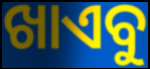
ଖାଏବୁ